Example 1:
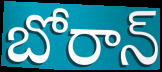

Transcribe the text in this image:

బోరాన్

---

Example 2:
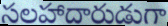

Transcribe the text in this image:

సలహాదారుడుగా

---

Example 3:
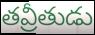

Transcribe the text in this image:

తవ్రీతుడు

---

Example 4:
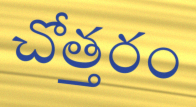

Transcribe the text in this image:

చోత్తరం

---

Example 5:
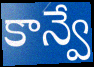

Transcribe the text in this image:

కాన్వే